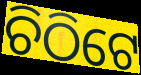
ଚିଠିଟେ